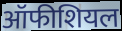
ऑफीशियल